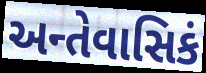
અન્તેવાસિકં